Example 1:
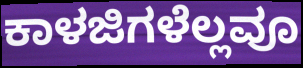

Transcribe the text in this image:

ಕಾಳಜಿಗಳೆಲ್ಲವೂ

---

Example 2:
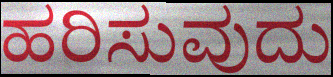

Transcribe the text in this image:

ಹರಿಸುವುದು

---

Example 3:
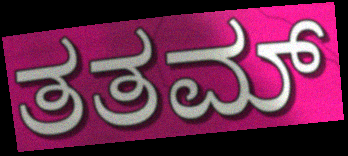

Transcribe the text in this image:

ತತಮ್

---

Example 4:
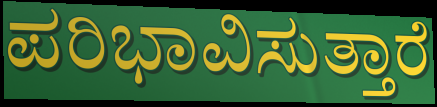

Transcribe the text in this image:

ಪರಿಭಾವಿಸುತ್ತಾರೆ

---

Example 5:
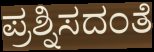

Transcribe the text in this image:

ಪ್ರಶ್ನಿಸದಂತೆ